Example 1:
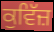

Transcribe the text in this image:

ਕੁਵਿੱਜ਼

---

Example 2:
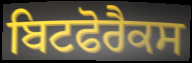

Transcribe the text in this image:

ਬਿਟਫੋਰੈਕਸ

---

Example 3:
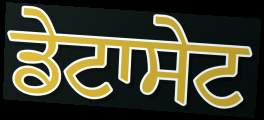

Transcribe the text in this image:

ਡੇਟਾਸੇਟ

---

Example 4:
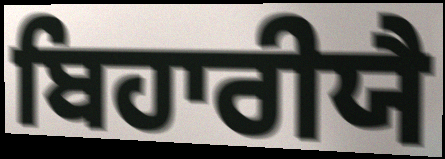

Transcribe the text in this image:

ਬਿਹਾਰੀਯੈ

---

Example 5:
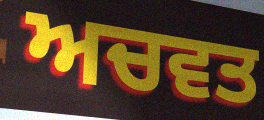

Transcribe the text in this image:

ਅਚਵਤ